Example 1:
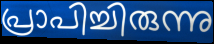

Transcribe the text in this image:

പ്രാപിച്ചിരുന്നു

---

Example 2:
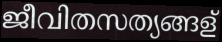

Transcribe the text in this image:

ജീവിതസത്യങ്ങള്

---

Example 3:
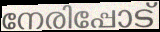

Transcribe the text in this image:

നേരിപ്പോട്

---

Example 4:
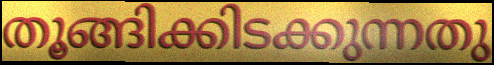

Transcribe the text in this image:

തൂങ്ങിക്കിടക്കുന്നതു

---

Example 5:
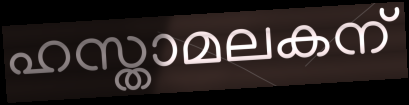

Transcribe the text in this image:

ഹസ്താമലകന്